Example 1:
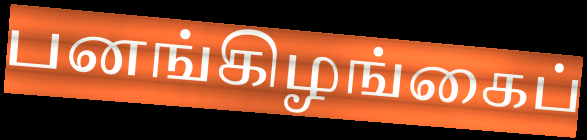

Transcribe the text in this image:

பனங்கிழங்கைப்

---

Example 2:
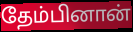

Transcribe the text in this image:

தேம்பினான்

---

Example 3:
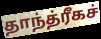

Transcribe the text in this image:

தாந்த்ரீகச்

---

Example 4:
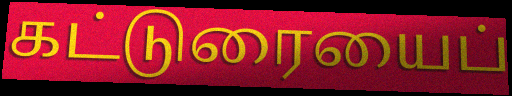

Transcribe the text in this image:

கட்டுரையைப்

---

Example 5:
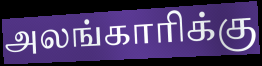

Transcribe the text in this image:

அலங்காரிக்கு